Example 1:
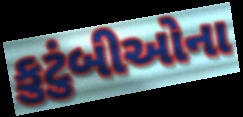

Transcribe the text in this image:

કુટુંબીઓના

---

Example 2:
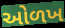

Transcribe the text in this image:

ઓળખ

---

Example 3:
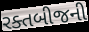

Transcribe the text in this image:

રક્તબીજની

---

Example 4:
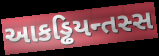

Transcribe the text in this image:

આકડ્ઢિયન્તસ્સ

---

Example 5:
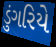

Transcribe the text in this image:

ડુંગરિયે